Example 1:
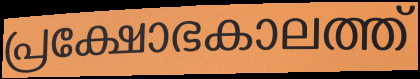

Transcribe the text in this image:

പ്രക്ഷോഭകാലത്ത്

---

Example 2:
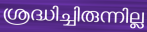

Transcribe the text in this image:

ശ്രദ്ധിച്ചിരുന്നില്ല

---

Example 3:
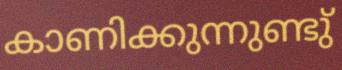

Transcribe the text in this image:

കാണിക്കുന്നുണ്ടു്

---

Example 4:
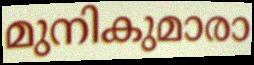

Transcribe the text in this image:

മുനികുമാരാ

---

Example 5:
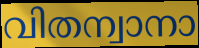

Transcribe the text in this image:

വിതന്വാനാ